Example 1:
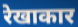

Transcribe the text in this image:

रेखाकार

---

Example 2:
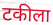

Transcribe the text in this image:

टकीला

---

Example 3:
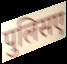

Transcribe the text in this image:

पुलिसए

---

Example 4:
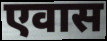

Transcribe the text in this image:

एवास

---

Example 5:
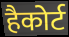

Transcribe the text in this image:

हैकोर्ट